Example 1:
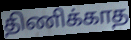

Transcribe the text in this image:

திணிக்காத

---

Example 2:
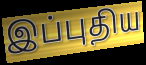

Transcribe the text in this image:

இப்புதிய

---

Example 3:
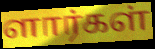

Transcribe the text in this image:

ளார்கள்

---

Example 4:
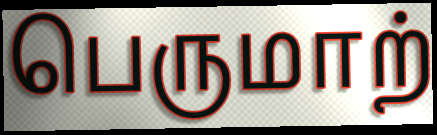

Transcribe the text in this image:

பெருமாற்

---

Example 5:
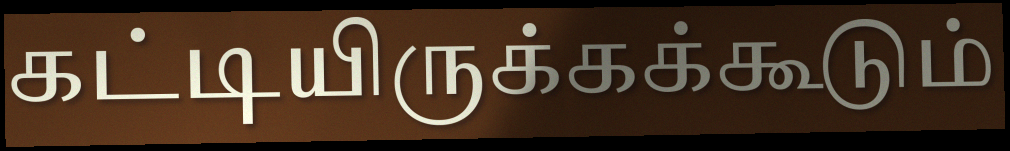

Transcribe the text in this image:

கட்டியிருக்கக்கூடும்